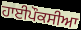
ਹਾਈਪੌਕਸੀਆ